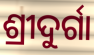
ଶ୍ରୀଦୁର୍ଗା